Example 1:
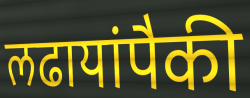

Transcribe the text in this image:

लढायांपैकी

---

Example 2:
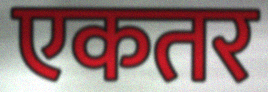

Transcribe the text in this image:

एकतर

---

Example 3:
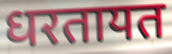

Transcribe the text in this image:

धरतायत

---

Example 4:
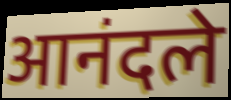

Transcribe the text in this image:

आनंदले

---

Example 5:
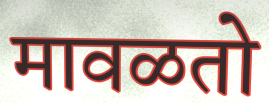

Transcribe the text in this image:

मावळतो